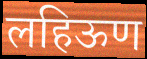
लहिऊण